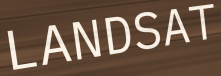
LANDSAT